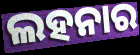
ଲହନାର